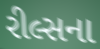
રીલ્સના